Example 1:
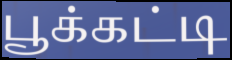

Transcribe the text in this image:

பூக்கட்டி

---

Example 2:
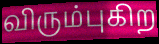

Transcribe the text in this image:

விரும்புகிற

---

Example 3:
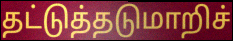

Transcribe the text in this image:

தட்டுத்தடுமாறிச்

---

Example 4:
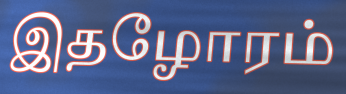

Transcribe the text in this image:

இதழோரம்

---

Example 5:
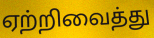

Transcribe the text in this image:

ஏற்றிவைத்து